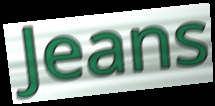
Jeans